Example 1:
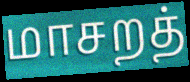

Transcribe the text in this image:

மாசறத்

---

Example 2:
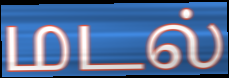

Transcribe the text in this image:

மடல்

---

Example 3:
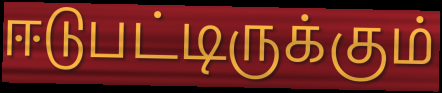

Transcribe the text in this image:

ஈடுபட்டிருக்கும்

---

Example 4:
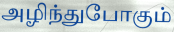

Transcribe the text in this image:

அழிந்துபோகும்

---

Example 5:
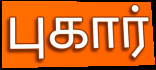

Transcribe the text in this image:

புகார்